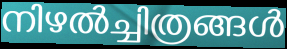
നിഴൽച്ചിത്രങ്ങൾ